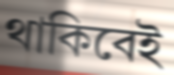
থাকিবেই